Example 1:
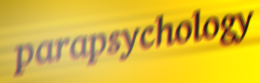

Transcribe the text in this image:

parapsychology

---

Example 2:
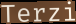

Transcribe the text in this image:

Terzi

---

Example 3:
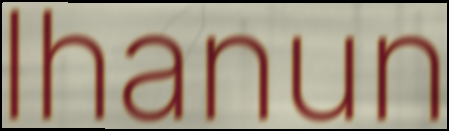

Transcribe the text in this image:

lhanun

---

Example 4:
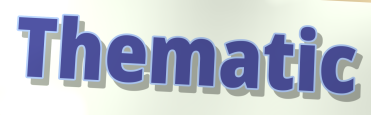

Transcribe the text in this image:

Thematic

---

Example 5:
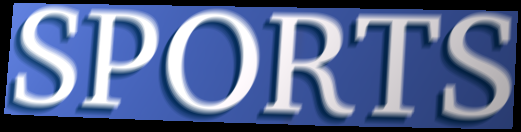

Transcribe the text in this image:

SPORTS